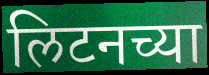
लिटनच्या